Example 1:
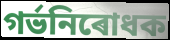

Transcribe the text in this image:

গৰ্ভনিৰোধক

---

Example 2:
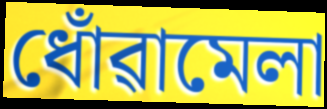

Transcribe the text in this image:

ধোঁৱামেলা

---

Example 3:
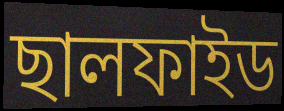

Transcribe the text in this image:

ছালফাইড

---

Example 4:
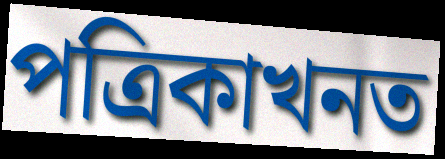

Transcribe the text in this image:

পত্ৰিকাখনত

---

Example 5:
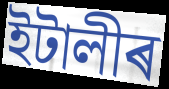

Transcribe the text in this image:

ইটালীৰ